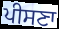
ਪੀਸਣਾ